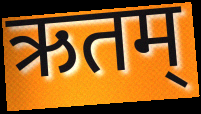
ऋतम्